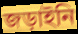
জড়াইনি